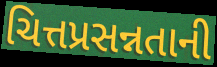
ચિત્તપ્રસન્નતાની